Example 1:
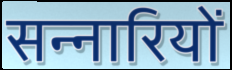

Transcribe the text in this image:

सन्नारियों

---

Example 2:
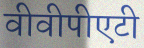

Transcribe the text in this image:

वीवीपीएटी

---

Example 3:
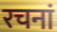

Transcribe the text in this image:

रचनां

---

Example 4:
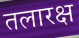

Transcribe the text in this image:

तलारक्ष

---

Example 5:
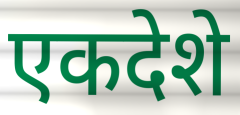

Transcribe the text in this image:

एकदेशे